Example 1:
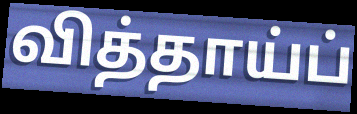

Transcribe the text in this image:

வித்தாய்ப்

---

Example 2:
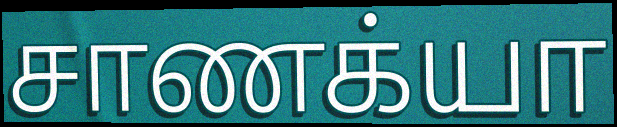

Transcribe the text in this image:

சாணக்யா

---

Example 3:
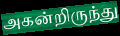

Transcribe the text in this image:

அகன்றிருந்து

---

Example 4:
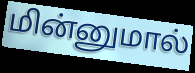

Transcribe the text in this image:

மின்னுமால்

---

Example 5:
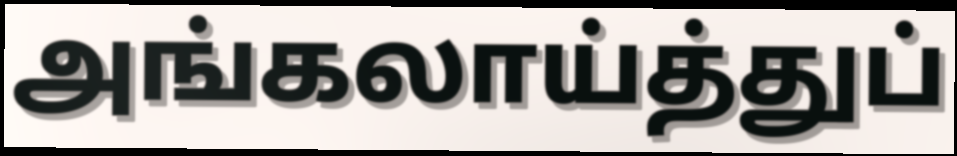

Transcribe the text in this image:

அங்கலாய்த்துப்